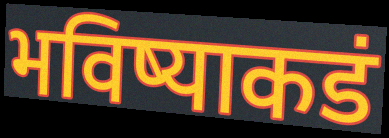
भविष्याकडं